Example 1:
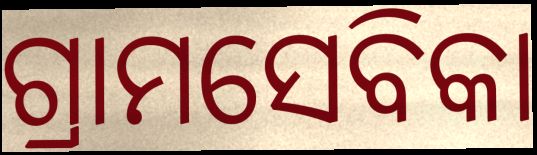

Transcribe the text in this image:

ଗ୍ରାମସେବିକା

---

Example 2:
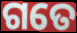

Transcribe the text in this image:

ଗତେ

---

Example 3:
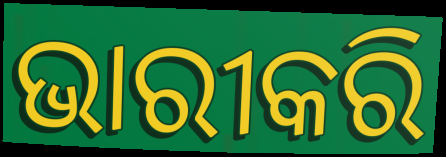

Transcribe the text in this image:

ଭାରୀକରି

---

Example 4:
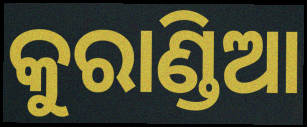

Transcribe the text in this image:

କୁରାଣ୍ଡିଆ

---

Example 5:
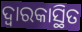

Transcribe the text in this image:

ଦ୍ୱାରକାସ୍ଥିତ